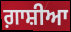
ਗ਼ਾਸ਼ੀਆ